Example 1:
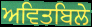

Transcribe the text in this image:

ਅਵਿਤਬਿਲੇ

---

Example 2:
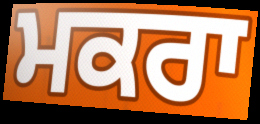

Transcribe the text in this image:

ਮਕਰਾ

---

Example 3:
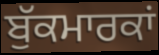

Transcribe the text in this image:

ਬੁੱਕਮਾਰਕਾਂ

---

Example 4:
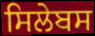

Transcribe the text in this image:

ਸਿਲੇਬਸ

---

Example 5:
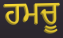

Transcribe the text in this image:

ਹਮਚੂ